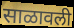
साळावली